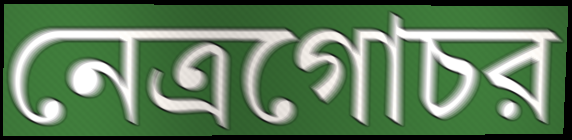
নেত্রগোচর